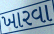
ખારવા